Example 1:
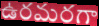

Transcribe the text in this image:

ఉరమరగా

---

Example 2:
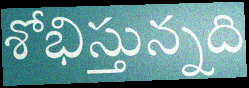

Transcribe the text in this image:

శోభిస్తున్నది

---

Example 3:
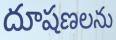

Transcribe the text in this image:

దూషణలను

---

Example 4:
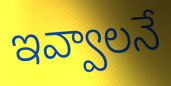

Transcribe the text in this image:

ఇవ్వాలనే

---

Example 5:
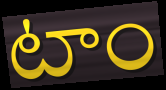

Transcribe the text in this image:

టాం